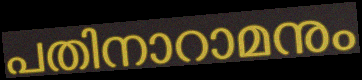
പതിനാറാമനും